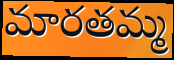
మారతమ్మ